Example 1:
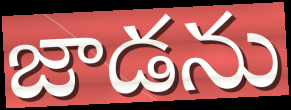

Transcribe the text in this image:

జాడను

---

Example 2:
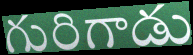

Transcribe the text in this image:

గురిగాడు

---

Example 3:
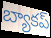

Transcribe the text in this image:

బ్యాకప్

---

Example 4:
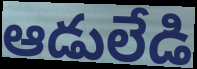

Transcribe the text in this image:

ఆడులేడి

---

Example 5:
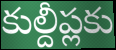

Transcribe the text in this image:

కుల్దీప్లకు